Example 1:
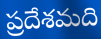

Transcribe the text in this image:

ప్రదేశమది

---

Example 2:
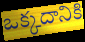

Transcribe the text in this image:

ఒక్కదానికి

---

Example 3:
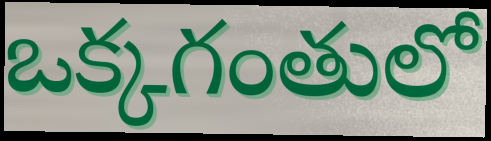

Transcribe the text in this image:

ఒక్కగంతులో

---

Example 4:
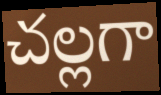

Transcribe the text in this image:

చల్లగా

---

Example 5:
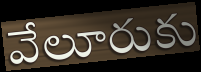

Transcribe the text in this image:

వేలూరుకు